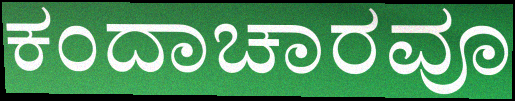
ಕಂದಾಚಾರವೂ